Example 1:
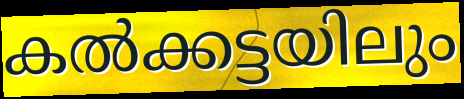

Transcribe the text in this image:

കൽക്കട്ടയിലും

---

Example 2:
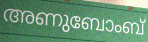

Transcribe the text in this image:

അണുബോംബ്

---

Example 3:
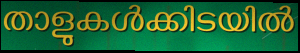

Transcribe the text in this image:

താളുകൾക്കിടയിൽ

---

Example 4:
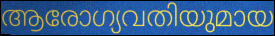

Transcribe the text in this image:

ആരോഗ്യവതിയുമായ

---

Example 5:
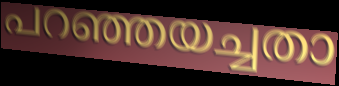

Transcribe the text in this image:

പറഞ്ഞയച്ചതാ